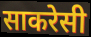
साकरेसी